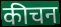
कीचन